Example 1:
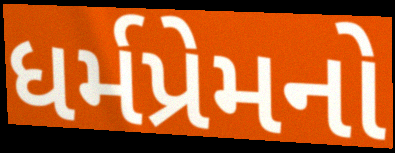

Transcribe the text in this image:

ધર્મપ્રેમનો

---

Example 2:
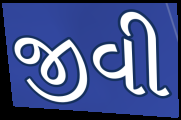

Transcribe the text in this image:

જીવી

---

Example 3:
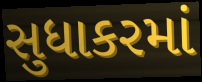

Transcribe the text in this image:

સુધાકરમાં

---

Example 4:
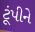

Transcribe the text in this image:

ટૂંપીને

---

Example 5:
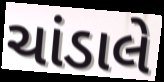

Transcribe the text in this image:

ચાંડાલે